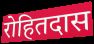
रोहितदास